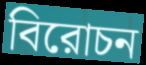
বিরোচন